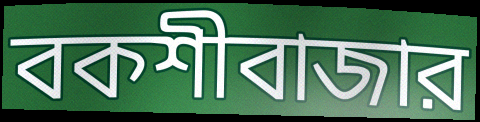
বকশীবাজার